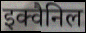
इक्वैनिल